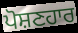
ਪੋਸ਼ਣਹਾਰ